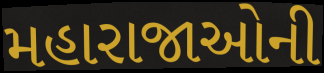
મહારાજાઓની